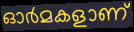
ഓർമകളാണ്